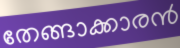
തേങ്ങാക്കാരൻ